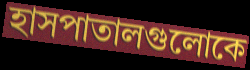
হাসপাতালগুলোকে